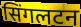
सिंगलटन